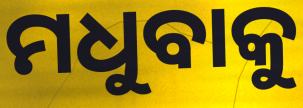
ମଧୁବାକୁ